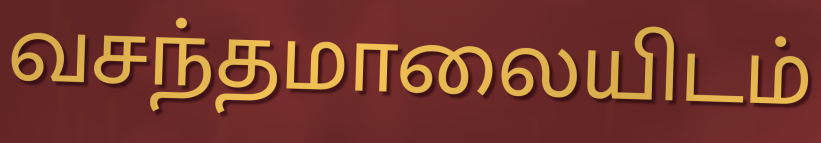
வசந்தமாலையிடம்